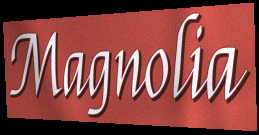
Magnolia